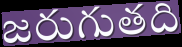
జరుగుతది